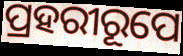
ପ୍ରହରୀରୂପେ